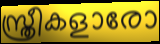
സ്ത്രീകളാരോ